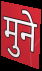
मुने